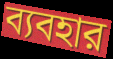
ব্যবহার